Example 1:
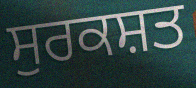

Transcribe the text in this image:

ਸੁਰਕਸ਼ਤ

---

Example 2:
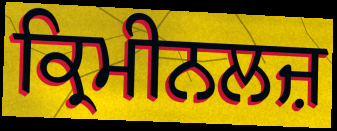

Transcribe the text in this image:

ਕ੍ਰਿਮੀਨਲਜ਼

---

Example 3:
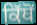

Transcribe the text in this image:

ਕਿੱਥੋੰ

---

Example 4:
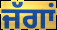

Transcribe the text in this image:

ਜੱਗਾਂ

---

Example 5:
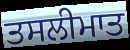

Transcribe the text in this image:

ਤਸਲੀਮਾਤ